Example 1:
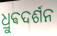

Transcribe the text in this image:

ଧ୍ରୁଵଦର୍ଶନ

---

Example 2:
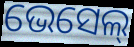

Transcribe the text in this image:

ଭେସେଲ୍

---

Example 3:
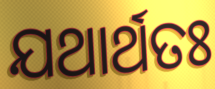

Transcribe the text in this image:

ଯଥାର୍ଥତଃ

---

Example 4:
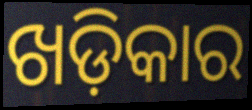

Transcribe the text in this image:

ଖଡ଼ିକାର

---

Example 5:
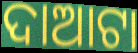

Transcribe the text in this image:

ଦାଆଟା